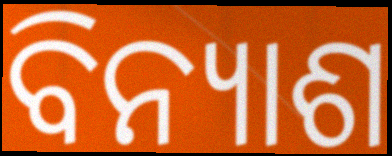
ବିନ୍ୟାଶ